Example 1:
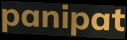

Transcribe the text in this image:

panipat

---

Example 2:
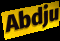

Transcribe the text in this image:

Abdju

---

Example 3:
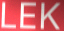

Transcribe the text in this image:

LEK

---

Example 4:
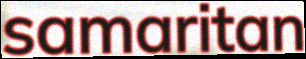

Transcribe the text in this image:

samaritan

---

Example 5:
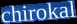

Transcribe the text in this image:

chirokal